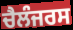
ਚੈਲੰਜਰਸ